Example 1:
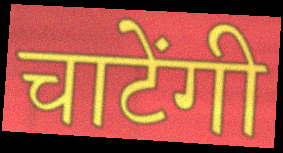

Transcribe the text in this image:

चाटेंगी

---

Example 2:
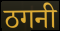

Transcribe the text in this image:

ठगनी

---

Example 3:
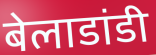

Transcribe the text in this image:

बेलाडांडी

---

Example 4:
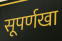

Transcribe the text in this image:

सूपर्णखा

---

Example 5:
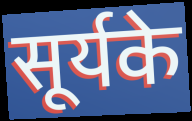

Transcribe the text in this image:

सूर्यके